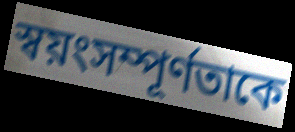
স্বয়ংসম্পূর্ণতাকে